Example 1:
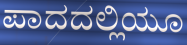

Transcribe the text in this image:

ಪಾದದಲ್ಲಿಯೂ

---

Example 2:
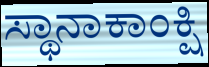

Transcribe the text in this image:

ಸ್ಥಾನಾಕಾಂಕ್ಷಿ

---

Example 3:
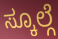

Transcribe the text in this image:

ಸ್ಕೂಲ್ಗೆ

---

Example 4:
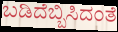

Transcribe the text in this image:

ಬಡಿದೆಬ್ಬಿಸಿದಂತೆ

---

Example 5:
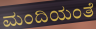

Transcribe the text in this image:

ಮಂದಿಯಂತೆ